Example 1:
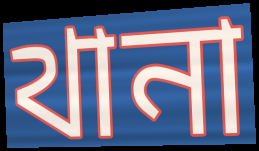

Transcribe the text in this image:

থানা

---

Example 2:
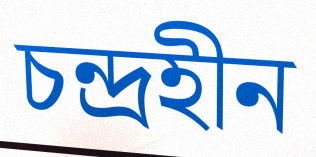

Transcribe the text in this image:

চন্দ্রহীন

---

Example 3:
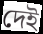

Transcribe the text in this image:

দেই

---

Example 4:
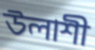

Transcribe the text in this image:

উলাশী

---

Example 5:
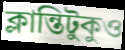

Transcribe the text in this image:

ক্লান্তিটুকুও